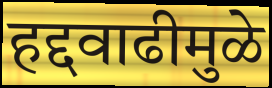
हद्दवाढीमुळे